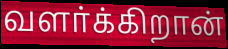
வளர்க்கிறான்